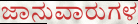
ಜಾನುವಾರುಗಳ